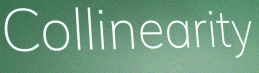
Collinearity